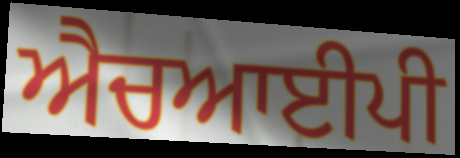
ਐਚਆਈਪੀ